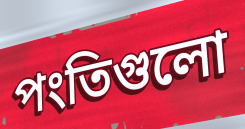
পংতিগুলো